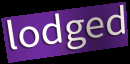
lodged